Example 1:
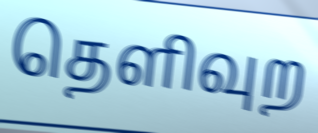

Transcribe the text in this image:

தெளிவுற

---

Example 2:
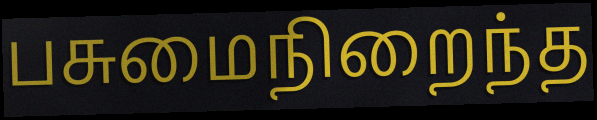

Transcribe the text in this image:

பசுமைநிறைந்த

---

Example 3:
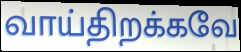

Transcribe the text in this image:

வாய்திறக்கவே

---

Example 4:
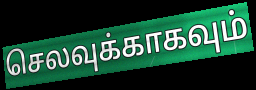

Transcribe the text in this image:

செலவுக்காகவும்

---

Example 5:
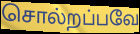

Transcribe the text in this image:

சொல்றப்பவே